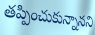
తప్పించుకున్నానని